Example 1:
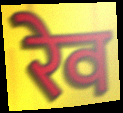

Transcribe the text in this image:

रेव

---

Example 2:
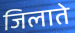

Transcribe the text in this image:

जिलाते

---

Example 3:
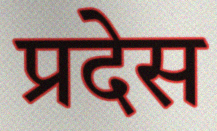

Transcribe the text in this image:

प्रदेस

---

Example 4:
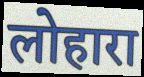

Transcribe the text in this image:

लोहारा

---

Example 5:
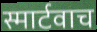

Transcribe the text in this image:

स्मार्टवाच